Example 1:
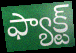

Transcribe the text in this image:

ఫ్యాక్ట్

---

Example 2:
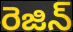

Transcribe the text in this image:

రెజిన్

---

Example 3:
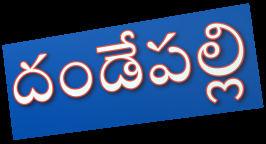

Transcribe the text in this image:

దండేపల్లి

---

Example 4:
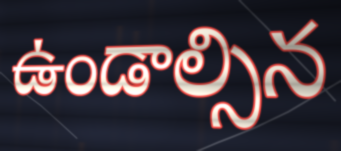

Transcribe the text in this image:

ఉండాల్సిన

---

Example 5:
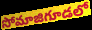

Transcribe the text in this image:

సోమాజిగూడలో